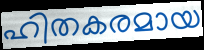
ഹിതകരമായ